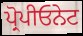
ਪ੍ਰੋਪੀਓਨੇਟ